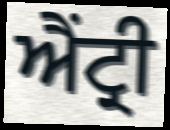
ਐਂਟ੍ਰੀ